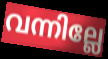
വന്നില്ലേ